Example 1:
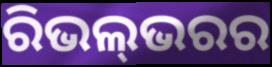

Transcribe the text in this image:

ରିଭଲ୍‍ଭରର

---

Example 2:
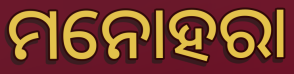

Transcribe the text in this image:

ମନୋହରା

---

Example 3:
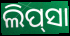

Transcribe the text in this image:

ଲିପ୍‌ସା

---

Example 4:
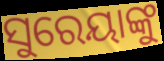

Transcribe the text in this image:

ସୁରେୟାଙ୍କୁ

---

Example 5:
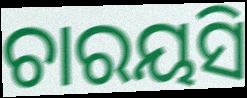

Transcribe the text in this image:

ଚାରୟସି